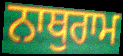
ਨਾਥੁਰਾਮ